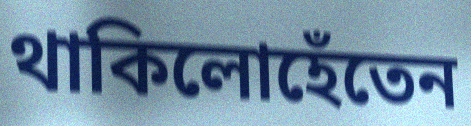
থাকিলোহেঁতেন